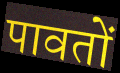
पावतों